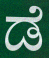
ಡೆ